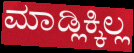
ಮಾಡ್ಲಿಕ್ಕಿಲ್ಲ